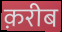
क़रीब